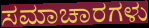
ಸಮಾಚಾರಗಳು